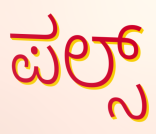
ಪಲ್ಸ್